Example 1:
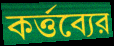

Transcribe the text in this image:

কর্ত্তব্যের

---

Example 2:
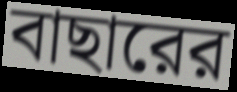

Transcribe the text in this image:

বাছারের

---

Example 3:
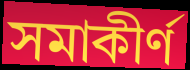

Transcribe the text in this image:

সমাকীর্ণ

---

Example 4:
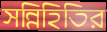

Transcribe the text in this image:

সন্নিহিতির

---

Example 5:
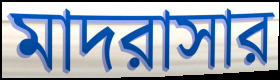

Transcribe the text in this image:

মাদরাসার